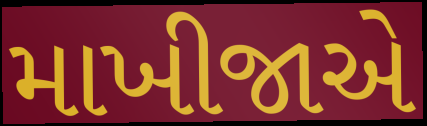
માખીજાએ